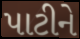
પાટીને